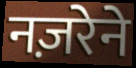
नज़रेने